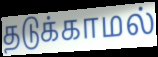
தடுக்காமல்